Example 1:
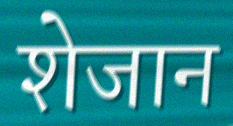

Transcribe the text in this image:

शेजान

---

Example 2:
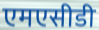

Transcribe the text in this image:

एमएसीडी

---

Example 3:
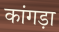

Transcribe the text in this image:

कांगड़ा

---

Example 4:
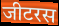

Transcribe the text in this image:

जीटरस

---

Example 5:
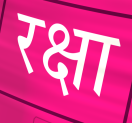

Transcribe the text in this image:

रक्षा